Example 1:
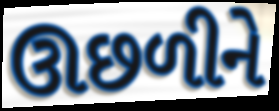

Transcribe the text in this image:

ઊછળીને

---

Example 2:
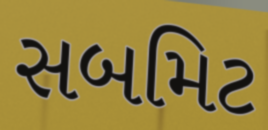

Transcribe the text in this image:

સબમિટ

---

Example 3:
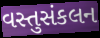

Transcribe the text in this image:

વસ્તુસંકલન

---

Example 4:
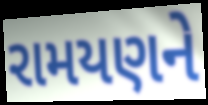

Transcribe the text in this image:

રામયણને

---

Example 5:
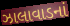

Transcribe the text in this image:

ઝાલાવાડનાં